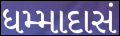
ધમ્માદાસં